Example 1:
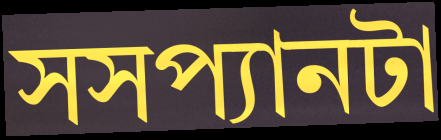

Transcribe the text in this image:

সসপ্যানটা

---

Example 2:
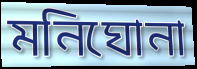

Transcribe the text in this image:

মনিঘোনা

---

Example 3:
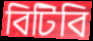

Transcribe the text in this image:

বিটিবি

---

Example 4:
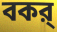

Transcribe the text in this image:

বকর্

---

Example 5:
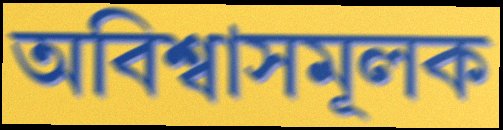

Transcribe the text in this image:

অবিশ্বাসমূলক